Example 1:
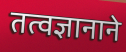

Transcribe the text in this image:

तत्वज्ञानाने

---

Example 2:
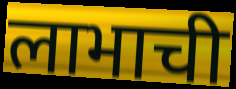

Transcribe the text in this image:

लाभाची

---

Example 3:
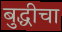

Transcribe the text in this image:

बुद्धीचा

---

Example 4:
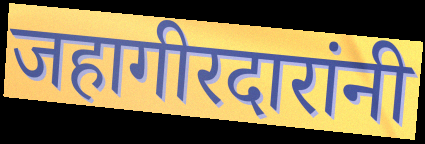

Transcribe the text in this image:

जहागीरदारांनी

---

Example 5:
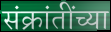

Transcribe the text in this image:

संक्रांतींच्या